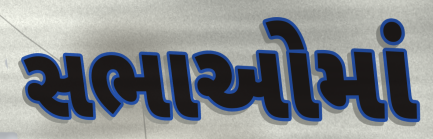
સભાઓમાં